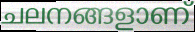
ചലനങ്ങളാണ്